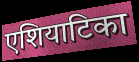
एशियाटिका